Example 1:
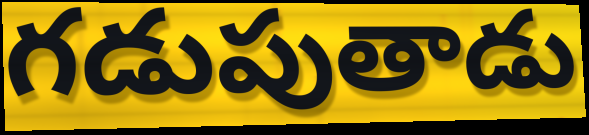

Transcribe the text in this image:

గడుపుతాడు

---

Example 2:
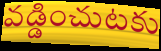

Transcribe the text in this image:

వడ్డించుటకు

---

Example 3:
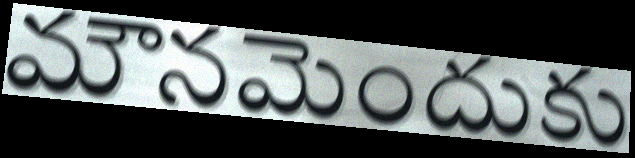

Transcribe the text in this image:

మౌనమెందుకు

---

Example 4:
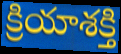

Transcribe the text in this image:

క్రియాశక్తి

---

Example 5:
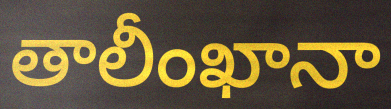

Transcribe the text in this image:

తాలీంఖానా